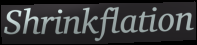
Shrinkflation